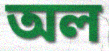
অল